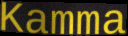
Kamma